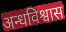
अन्धविश्वास